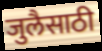
जुलैसाठी